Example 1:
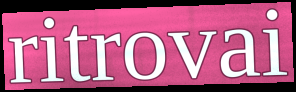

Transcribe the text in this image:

ritrovai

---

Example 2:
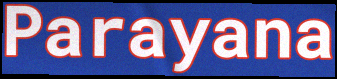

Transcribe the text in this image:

Parayana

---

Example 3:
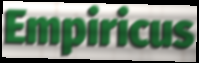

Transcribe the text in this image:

Empiricus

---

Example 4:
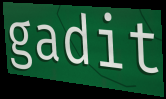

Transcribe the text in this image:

gadit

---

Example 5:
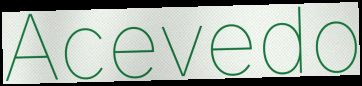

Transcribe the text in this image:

Acevedo